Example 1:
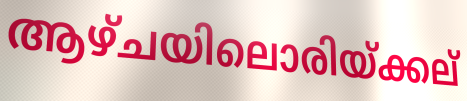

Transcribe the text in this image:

ആഴ്ചയിലൊരിയ്ക്കല്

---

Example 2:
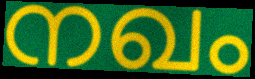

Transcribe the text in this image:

നഖം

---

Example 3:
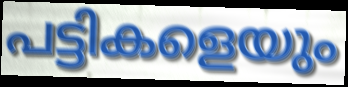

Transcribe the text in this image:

പട്ടികളെയും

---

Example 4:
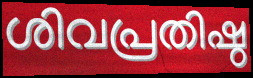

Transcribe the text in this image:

ശിവപ്രതിഷ്ഠ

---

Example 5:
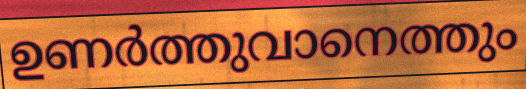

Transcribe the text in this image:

ഉണർത്തുവാനെത്തും